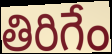
తిరిగేం